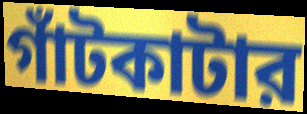
গাঁটকাটার